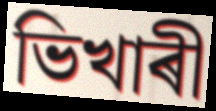
ভিখাৰী